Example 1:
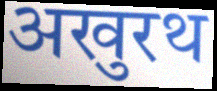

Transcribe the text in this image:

अखुरथ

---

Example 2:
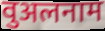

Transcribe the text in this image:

वुअलनाम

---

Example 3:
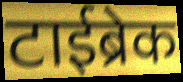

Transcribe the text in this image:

टाईब्रेक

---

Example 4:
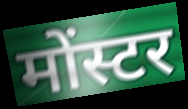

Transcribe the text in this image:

मोंस्टर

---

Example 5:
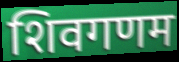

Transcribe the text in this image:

शिवगणम